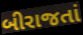
બીરાજતાં